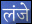
लंजे